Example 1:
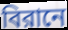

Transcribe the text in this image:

বিরানে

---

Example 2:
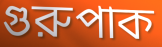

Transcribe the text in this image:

গুরুপাক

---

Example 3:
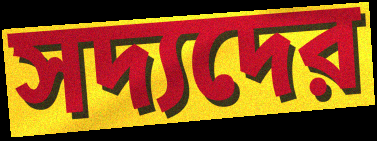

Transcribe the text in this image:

সদ্যদের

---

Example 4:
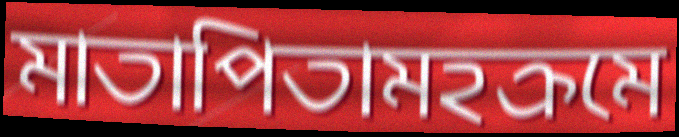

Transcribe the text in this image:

মাতাপিতামহক্রমে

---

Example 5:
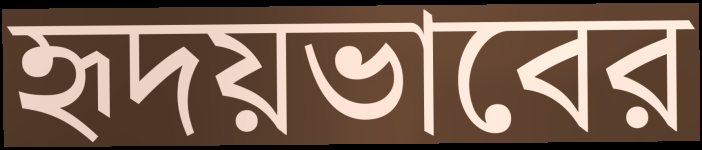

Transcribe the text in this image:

হৃদয়ভাবের